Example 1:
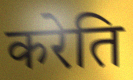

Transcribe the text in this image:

करेति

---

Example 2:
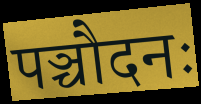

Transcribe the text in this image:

पञ्चौदनः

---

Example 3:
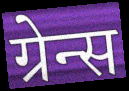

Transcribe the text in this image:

ग्रेन्स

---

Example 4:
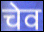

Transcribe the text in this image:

चेव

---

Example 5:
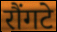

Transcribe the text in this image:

रौंगटे